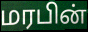
மரபின்